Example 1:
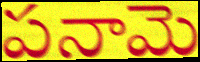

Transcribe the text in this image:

పనామె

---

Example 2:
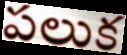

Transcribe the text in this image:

పలుక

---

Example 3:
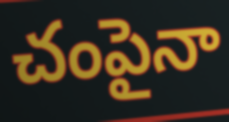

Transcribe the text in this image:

చంపైనా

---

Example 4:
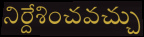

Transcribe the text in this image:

నిర్దేశించవచ్చు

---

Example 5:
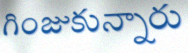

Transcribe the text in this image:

గింజుకున్నారు